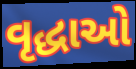
વૃદ્ધાઓ